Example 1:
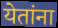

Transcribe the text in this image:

येतांना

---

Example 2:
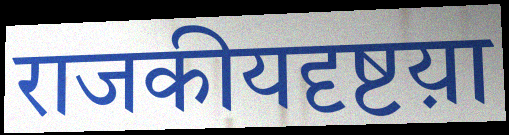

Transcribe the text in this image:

राजकीयदृष्टय़ा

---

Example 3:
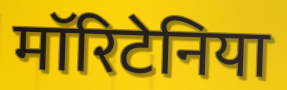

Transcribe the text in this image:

मॉरिटेनिया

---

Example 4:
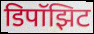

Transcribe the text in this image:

डिपॉझिट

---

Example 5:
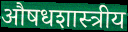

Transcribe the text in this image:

औषधशास्त्रीय